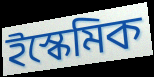
ইস্কেমিক